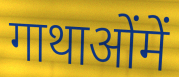
गाथाओंमें